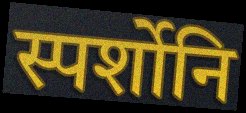
स्पर्शोनि